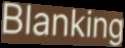
Blanking